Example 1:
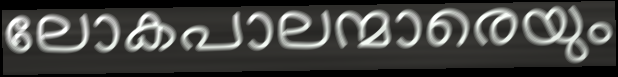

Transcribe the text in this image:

ലോകപാലന്മാരെയും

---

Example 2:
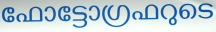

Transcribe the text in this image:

ഫോട്ടോഗ്രഫറുടെ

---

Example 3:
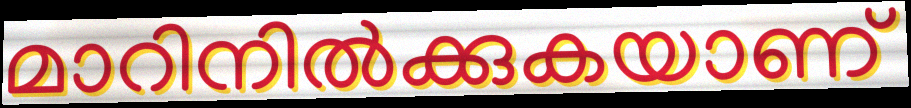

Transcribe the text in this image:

മാറിനിൽക്കുകയാണ്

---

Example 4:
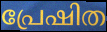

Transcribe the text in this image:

പ്രേഷിത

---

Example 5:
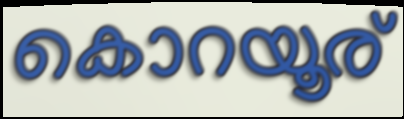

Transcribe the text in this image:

കൊറയൂര്